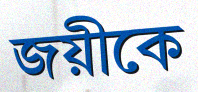
জয়ীকে